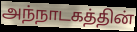
அந்நாடகத்தின்